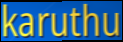
karuthu